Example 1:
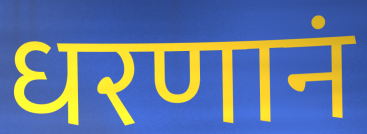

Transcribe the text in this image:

धरणानं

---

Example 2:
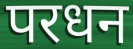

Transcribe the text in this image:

परधन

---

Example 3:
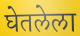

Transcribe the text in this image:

घेतलेला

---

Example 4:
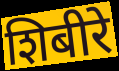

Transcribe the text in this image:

शिबीरे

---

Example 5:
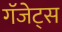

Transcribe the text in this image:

गॅजेट्स